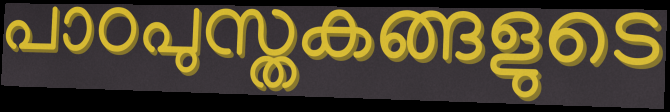
പാഠപുസ്തകങ്ങളുടെ